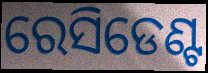
ରେସିଡେଣ୍ଟ